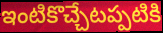
ఇంటికొచ్చేటప్పటికి